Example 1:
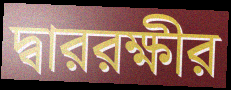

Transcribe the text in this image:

দ্বাররক্ষীর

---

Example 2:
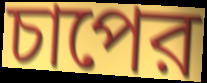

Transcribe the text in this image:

চাপের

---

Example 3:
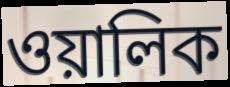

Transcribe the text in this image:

ওয়ালিক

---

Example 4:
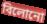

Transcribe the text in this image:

বিলোনো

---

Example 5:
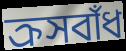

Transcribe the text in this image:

ক্রসবাঁধ